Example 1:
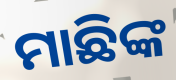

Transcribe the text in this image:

ମାଛିଙ୍କ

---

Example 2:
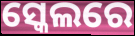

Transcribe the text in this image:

ସ୍କେଲରେ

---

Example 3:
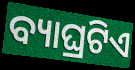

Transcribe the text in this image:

ବ୍ୟାଘ୍ରଟିଏ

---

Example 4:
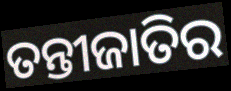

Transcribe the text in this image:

ତନ୍ତୀଜାତିର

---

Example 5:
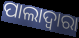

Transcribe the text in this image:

ପାଲାଦ୍ୱାରା